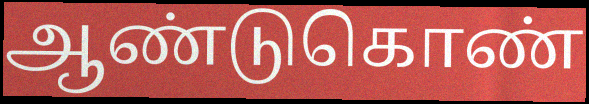
ஆண்டுகொண்